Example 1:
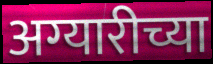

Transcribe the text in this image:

अग्यारीच्या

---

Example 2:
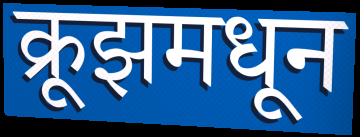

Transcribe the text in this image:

क्रूझमधून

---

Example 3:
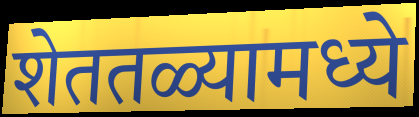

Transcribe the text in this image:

शेततळ्यामध्ये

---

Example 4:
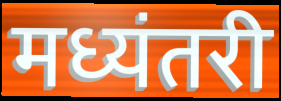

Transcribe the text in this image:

मध्यंतरी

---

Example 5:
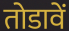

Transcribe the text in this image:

तोडावें